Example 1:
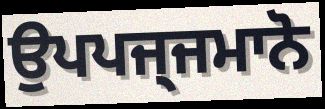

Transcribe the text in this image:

ਉਪਪਜ੍ਜਮਾਨੋ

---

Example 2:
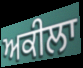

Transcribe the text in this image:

ਅਕੀਲਾ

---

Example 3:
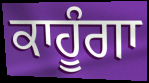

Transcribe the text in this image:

ਕਾਹੂੰਗਾ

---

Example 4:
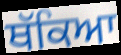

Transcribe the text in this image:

ਥੱਕਿਆ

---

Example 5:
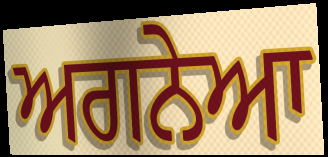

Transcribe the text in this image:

ਅਗਨੇਆ